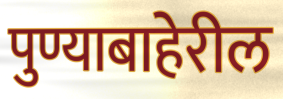
पुण्याबाहेरील